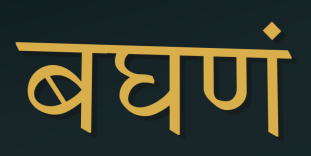
बघणं